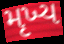
મૃખ્ય